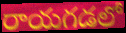
రాయగడలో